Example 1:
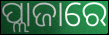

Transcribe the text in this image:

ପ୍ଲାଜାରେ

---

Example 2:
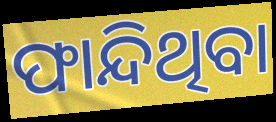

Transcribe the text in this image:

ଫାନ୍ଦିଥିବା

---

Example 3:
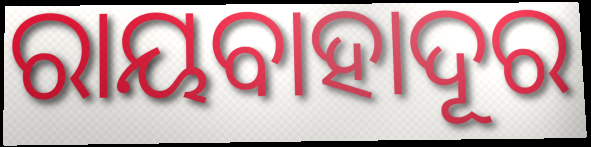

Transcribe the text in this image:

ରାୟବାହାଦୂର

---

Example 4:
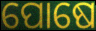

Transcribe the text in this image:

ପୋଷେ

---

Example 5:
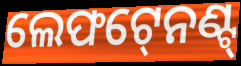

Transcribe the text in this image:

ଲେଫଟ୍‍ନେଣ୍ଟ୍